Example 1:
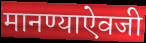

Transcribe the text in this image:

मानण्याऐवजी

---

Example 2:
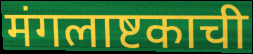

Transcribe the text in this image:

मंगलाष्टकाची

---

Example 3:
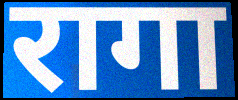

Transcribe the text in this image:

रागा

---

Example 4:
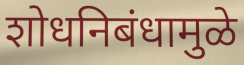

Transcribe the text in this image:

शोधनिबंधामुळे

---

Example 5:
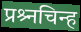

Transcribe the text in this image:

प्रश्र्नचिन्ह